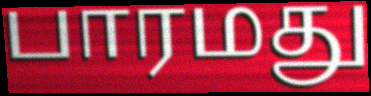
பாரமது